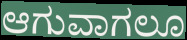
ಆಗುವಾಗಲೂ